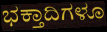
ಭಕ್ತಾದಿಗಳೂ